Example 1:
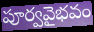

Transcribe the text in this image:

పూర్వవైభవం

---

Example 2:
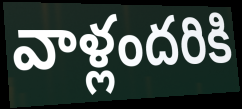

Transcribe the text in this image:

వాళ్లందరికి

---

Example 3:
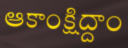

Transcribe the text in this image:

ఆకాంక్షిద్దాం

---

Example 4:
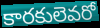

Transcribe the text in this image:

కారకులెవరో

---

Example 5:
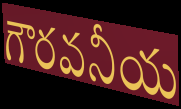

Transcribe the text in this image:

గౌరవనీయ